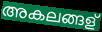
അകലങ്ങള്